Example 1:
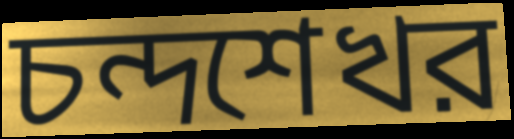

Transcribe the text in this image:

চন্দশেখর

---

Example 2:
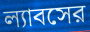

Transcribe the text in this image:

ল্যাবসের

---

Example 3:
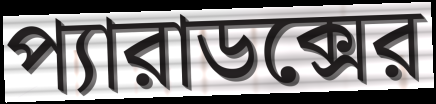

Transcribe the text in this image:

প্যারাডক্সের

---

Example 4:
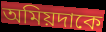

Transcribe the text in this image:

অমিয়দাকে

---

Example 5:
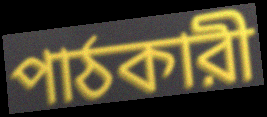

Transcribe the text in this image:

পাঠকারী